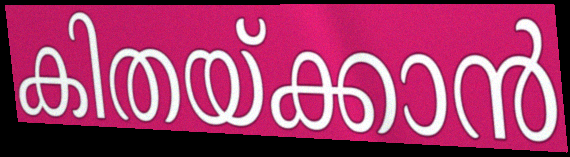
കിതയ്ക്കാൻ